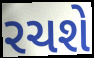
રચશે